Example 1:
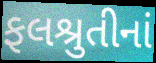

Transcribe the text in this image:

ફલશ્રુતીનાં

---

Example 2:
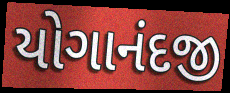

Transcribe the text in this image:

યોગાનંદજી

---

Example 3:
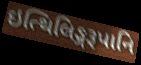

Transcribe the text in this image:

ઇત્થિલિઙ્ગરૂપાનિ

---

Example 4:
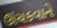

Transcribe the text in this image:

ઊંચકવાને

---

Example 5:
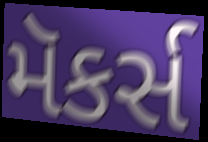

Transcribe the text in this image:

મૅકર્સ